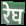
रेघ